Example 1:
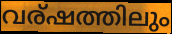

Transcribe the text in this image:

വര്ഷത്തിലും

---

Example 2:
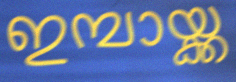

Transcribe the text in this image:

ഇമ്പായ്ക്ക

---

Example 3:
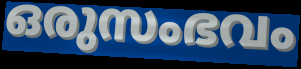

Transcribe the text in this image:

ഒരുസംഭവം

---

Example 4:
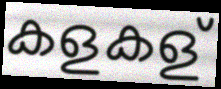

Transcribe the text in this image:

കളകള്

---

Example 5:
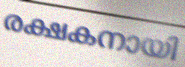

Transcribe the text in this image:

രക്ഷകനായി